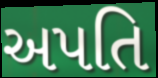
અપતિ